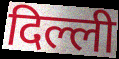
दिल्‍ली